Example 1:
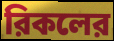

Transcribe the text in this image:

রিকলের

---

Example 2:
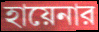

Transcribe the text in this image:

হায়েনার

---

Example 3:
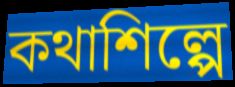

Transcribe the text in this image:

কথাশিল্পে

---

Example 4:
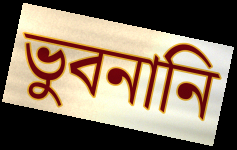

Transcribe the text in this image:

ভুবনানি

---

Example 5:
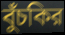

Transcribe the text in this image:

বুঁচকির